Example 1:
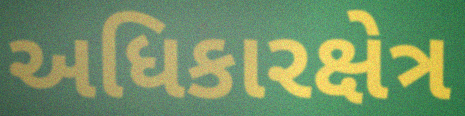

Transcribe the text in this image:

અધિકારક્ષેત્ર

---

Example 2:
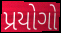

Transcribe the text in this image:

પ્રયોગો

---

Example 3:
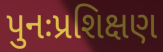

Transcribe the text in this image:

પુનઃપ્રશિક્ષણ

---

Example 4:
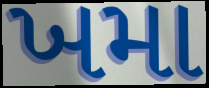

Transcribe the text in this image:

ખમા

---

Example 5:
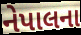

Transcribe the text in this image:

નેપાલના